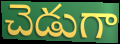
చెడుగా